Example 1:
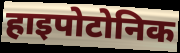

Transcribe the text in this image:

हाइपोटोनिक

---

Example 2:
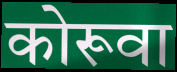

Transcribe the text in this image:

कोरूवा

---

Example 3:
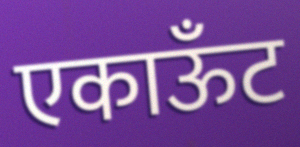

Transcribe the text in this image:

एकाऊँट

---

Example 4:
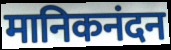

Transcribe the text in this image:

मानिकनंदन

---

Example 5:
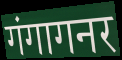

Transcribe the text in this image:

गंगागनर